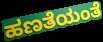
ಹಣತೆಯಂತೆ